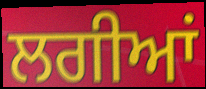
ਲਗੀਆਂ